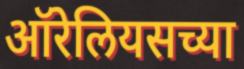
ऑरेलियसच्या